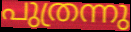
പുത്രന്നു